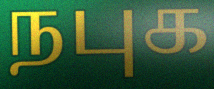
நபுக